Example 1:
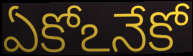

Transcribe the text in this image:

ఏకోఽనేకో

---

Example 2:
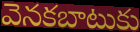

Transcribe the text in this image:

వెనకబాటుకు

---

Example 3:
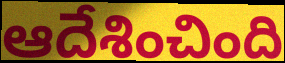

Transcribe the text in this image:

ఆదేశించింది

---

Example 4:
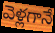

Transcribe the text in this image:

వెళ్లగానే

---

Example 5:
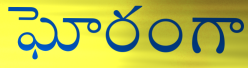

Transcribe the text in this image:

ఘోరంగా